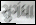
સુગંધા